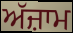
ਅੱਜ਼ਾਮ